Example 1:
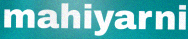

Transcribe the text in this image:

mahiyarni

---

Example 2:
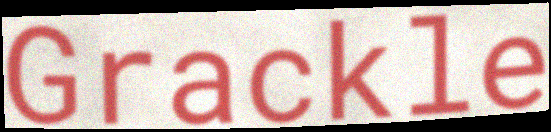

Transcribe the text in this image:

Grackle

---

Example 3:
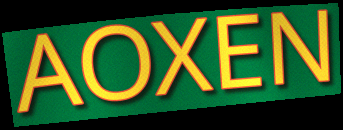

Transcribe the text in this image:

AOXEN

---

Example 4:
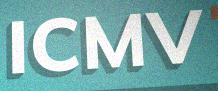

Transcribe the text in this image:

ICMV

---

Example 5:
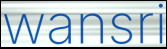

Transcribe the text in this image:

wansri